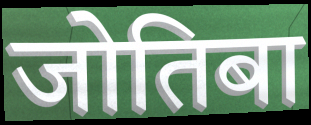
जोतिबा